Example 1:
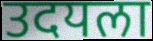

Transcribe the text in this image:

उदयला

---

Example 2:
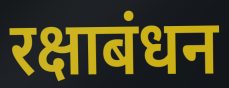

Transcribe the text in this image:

रक्षाबंधन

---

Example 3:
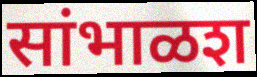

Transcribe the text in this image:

सांभाळश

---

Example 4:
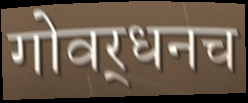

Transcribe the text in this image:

गोवर्धनच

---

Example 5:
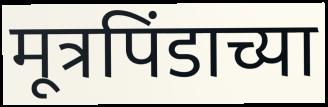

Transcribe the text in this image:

मूत्रपिंडाच्या